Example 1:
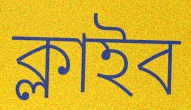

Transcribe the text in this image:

ক্লাইব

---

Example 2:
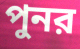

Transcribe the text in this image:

পুনর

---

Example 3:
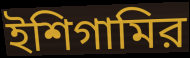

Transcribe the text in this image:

ইশিগামির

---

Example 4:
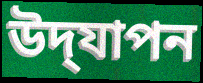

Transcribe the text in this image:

উদ্‌যাপন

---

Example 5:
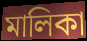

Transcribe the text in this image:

মালিকা